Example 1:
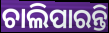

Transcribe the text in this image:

ଚାଲିପାରନ୍ତି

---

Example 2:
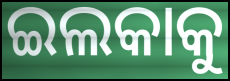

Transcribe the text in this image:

ଇଲକାକୁ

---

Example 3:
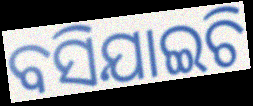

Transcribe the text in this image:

ବସିଯାଇଚି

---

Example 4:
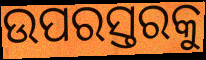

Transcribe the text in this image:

ଉପରସ୍ତରକୁ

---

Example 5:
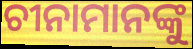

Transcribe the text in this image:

ଚୀନାମାନଙ୍କୁ